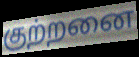
குற்றனை